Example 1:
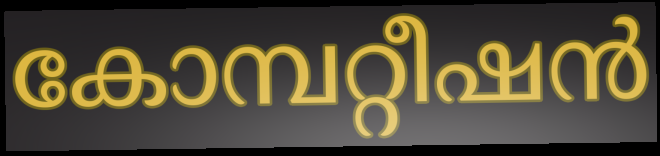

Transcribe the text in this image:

കോമ്പറ്റീഷൻ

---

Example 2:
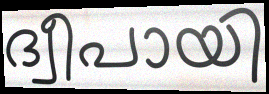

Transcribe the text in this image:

ദ്വീപായി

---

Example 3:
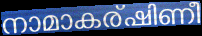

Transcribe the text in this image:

നാമാകര്ഷിണീ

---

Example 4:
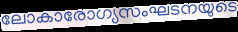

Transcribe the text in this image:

ലോകാരോഗ്യസംഘടനയുടെ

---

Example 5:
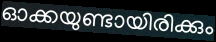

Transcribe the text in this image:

ഓക്കയുണ്ടായിരിക്കും